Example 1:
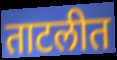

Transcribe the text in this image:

ताटलीत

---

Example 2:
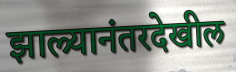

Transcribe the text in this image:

झाल्यानंतरदेखील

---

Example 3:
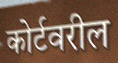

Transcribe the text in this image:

कोर्टवरील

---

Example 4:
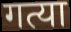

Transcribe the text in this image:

गत्या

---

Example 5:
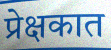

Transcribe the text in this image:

प्रेक्षकात